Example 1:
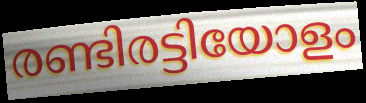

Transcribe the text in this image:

രണ്ടിരട്ടിയോളം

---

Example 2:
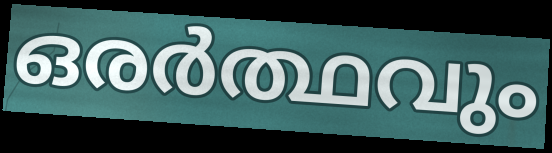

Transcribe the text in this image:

ഒരർത്ഥവും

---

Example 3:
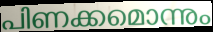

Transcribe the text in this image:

പിണക്കമൊന്നും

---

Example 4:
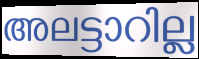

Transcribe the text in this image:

അലട്ടാറില്ല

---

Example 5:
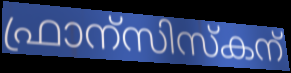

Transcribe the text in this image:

ഫ്രാന്സിസ്കന്